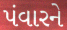
પંવારને